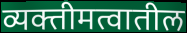
व्यक्तीमत्वातील